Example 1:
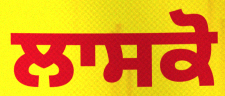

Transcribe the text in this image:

ਲਾਸਕੋ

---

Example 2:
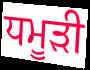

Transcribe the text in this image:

ਧਮੂੜੀ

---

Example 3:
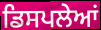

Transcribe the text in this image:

ਡਿਸਪਲੇਆਂ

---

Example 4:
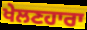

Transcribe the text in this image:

ਖੇਲਣਹਾਰਾ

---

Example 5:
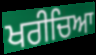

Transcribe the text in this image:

ਖਰੀਚਿਆ